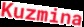
Kuzmina